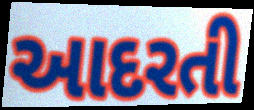
આદરતી